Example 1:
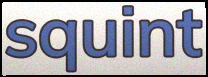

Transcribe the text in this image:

squint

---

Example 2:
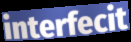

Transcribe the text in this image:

interfecit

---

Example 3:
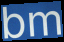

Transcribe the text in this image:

bm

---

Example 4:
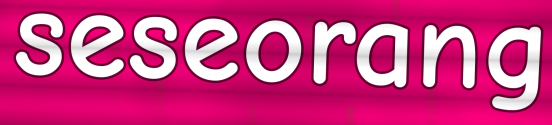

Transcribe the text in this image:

seseorang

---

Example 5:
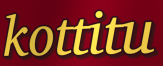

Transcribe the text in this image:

kottitu